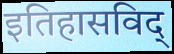
इतिहासविद्